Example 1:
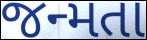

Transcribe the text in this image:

જન્મતા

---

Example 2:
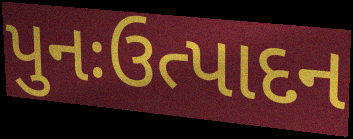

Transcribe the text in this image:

પુનઃઉત્પાદન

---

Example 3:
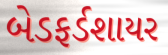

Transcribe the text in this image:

બેડફર્ડશાયર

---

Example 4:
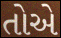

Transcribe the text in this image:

તોએ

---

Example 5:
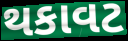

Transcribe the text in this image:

થકાવટ